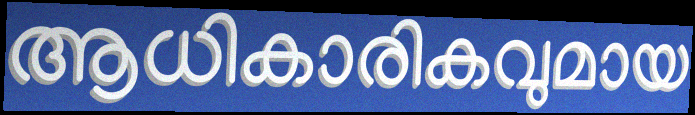
ആധികാരികവുമായ